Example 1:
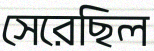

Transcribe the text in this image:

সেরেছিল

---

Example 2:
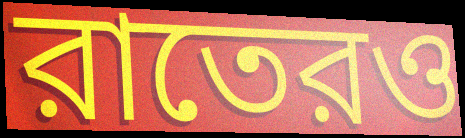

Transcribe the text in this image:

রাতেরও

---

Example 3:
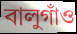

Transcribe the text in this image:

বালুগাঁও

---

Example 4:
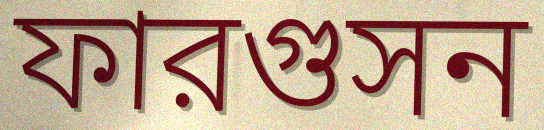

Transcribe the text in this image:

ফারগুসন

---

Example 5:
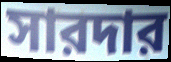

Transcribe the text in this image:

সারদার